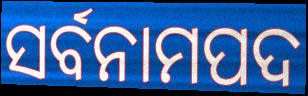
ସର୍ବନାମପଦ